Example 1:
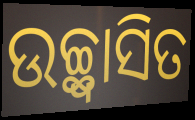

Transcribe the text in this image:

ଉଚ୍ଛ୍ୱାସିତ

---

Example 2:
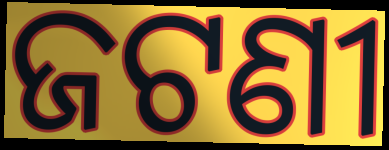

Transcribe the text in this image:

ଜଟଣୀ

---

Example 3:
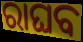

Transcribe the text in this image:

ରାଘବ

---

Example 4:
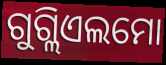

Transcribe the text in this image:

ଗୁଗ୍ଲିଏଲମୋ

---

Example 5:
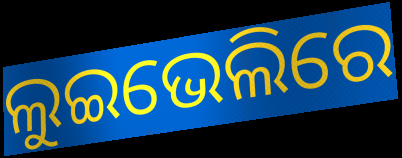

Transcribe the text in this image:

ଲୁଇଭେଲିରେ